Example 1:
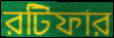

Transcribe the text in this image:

রটিফার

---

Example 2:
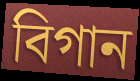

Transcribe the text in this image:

বিগান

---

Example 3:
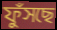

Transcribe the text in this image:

ফুঁসছে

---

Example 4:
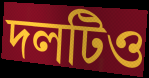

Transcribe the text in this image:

দলটিও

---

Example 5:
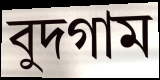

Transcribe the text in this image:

বুদগাম